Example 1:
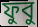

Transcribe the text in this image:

ফুবু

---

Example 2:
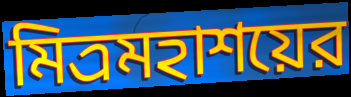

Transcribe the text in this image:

মিত্রমহাশয়ের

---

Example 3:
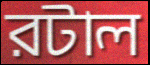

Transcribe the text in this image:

রটাল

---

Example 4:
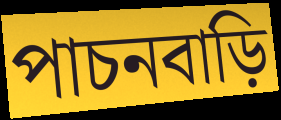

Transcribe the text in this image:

পাচনবাড়ি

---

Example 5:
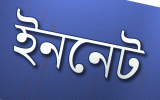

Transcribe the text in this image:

ইননেট